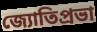
জ্যোতিপ্রভা